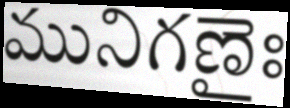
మునిగణైః